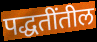
पद्धतींतील